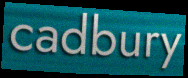
cadbury